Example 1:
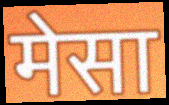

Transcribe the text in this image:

मेसा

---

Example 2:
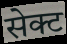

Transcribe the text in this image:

सेक्ट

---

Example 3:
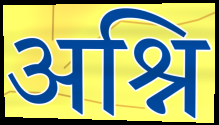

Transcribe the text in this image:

अश्नि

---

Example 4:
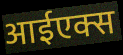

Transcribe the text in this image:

आईएक्स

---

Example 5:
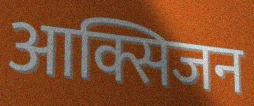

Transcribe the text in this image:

आक्सिजन